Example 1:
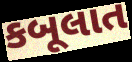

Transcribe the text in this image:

કબૂલાત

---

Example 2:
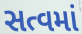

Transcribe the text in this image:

સત્વમાં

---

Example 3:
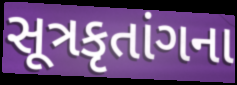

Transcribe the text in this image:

સૂત્રકૃતાંગના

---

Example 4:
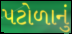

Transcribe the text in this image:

પટોળાનું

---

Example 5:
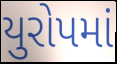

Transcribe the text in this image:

યુરોપમાં